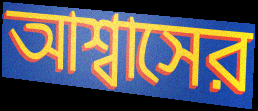
আশ্বাসের